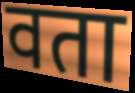
वता